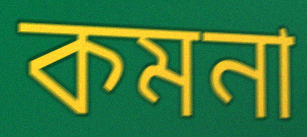
কমনা